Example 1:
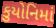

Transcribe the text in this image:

કુયોનિમાં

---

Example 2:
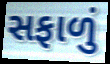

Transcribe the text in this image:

સફાળું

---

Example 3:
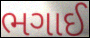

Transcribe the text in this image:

ભગાઈ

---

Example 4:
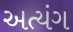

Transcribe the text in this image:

અત્યંગ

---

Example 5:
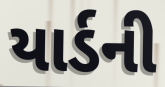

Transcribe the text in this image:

યાર્ડની